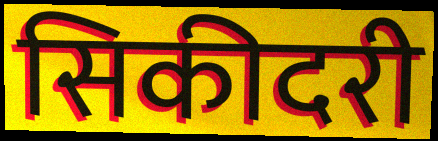
सिकीदरी